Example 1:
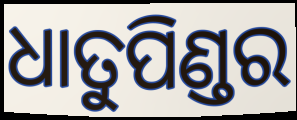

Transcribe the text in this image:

ଧାତୁପିଣ୍ଡର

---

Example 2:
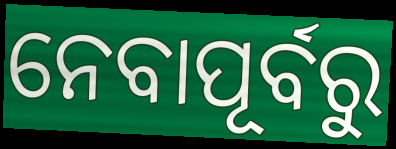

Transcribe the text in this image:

ନେବାପୂର୍ବରୁ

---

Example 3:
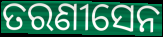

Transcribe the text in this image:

ତରଣୀସେନ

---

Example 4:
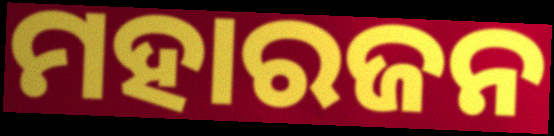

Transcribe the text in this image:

ମହାରଜନ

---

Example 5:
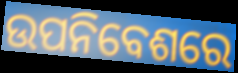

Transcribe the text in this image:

ଉପନିବେଶରେ